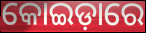
କୋଇଡ଼ାରେ